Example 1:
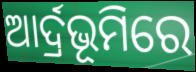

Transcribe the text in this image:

ଆର୍ଦ୍ରଭୂମିରେ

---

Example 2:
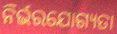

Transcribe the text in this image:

ନିର୍ଭରଯୋଗ୍ୟତା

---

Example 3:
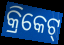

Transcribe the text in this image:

କ୍ରିକେଟ୍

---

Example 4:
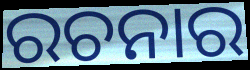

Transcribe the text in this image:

ରଚନାର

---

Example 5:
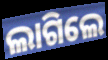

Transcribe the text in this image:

ଲାଗିଲେ